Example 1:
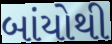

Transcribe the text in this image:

બાંયોથી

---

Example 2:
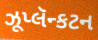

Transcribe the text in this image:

ઝૂપ્લૅન્કટન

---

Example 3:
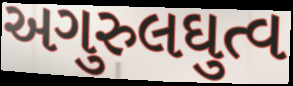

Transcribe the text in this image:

અગુરુલઘુત્વ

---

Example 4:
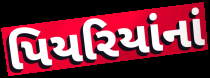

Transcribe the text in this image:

પિયરિયાંનાં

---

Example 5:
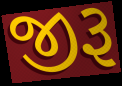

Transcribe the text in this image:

જીરૂ